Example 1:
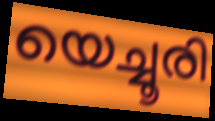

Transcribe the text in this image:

യെച്ചൂരി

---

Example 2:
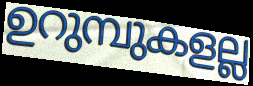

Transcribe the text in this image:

ഉറുമ്പുകളല്ല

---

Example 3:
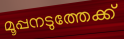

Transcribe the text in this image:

മൂപ്പനടുത്തേക്ക്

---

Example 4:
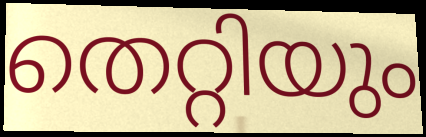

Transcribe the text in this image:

തെറ്റിയും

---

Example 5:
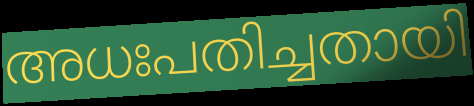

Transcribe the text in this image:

അധഃപതിച്ചതായി